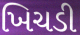
ખિચડી